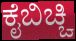
ಕೈಬಿಚ್ಚಿ